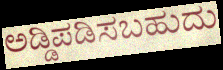
ಅಡ್ಡಿಪಡಿಸಬಹುದು